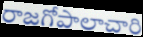
రాజగోపాలాచారి